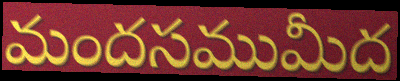
మందసముమీద